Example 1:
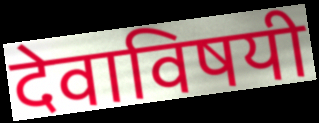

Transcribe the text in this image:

देवाविषयी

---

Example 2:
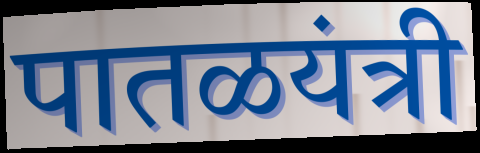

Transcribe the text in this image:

पातळयंत्री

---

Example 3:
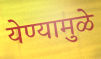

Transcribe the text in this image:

येण्यामुळे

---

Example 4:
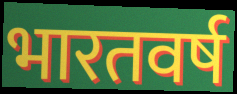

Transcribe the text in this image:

भारतवर्ष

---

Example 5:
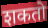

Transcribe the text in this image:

शकतो